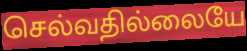
செல்வதில்லையே